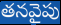
తనవైపు